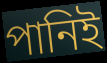
পানিই